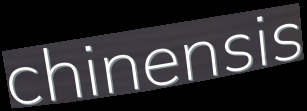
chinensis